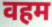
वहम